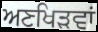
ਅਣਖਿੜਵਾਂ